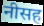
नीसह